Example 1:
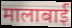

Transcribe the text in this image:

मालाबाई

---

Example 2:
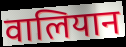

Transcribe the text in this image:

वालियान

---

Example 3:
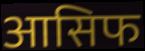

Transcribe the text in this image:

आसिफ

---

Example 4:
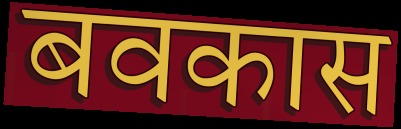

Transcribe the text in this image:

बवकास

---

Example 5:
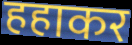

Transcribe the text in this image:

हहाकर